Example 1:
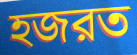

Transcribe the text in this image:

হজরত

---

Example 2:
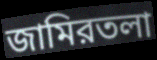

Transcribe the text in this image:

জামিরতলা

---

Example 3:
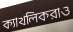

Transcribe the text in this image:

ক্যাথলিকরাও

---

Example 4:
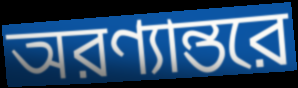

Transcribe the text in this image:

অরণ্যান্তরে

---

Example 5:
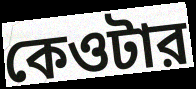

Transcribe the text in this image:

কেওটার